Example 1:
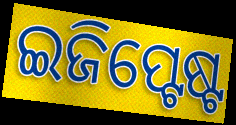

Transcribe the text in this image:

ଇଜିପ୍ଟେଷ୍ଟ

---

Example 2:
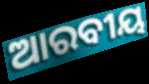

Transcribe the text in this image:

ଆରବୀୟ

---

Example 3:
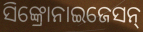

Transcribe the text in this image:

ସିଙ୍କ୍ରୋନାଇଜେସନ୍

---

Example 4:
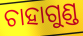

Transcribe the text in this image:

ଚାହାଗୁଣ୍ଡ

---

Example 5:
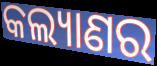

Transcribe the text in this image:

କଲ୍ୟାଣର